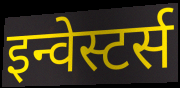
इन्वेस्टर्स